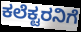
ಕಲೆಕ್ಟರನಿಗೆ